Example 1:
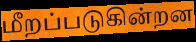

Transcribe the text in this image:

மீறப்படுகின்றன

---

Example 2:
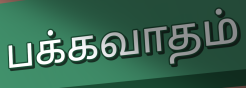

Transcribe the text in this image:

பக்கவாதம்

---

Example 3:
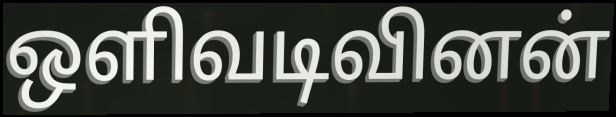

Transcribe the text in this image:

ஒளிவடிவினன்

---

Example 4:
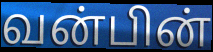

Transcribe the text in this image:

வன்பின்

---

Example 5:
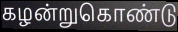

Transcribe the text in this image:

கழன்றுகொண்டு